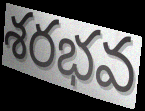
శరభవ